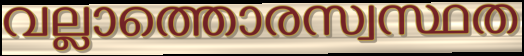
വല്ലാത്തൊരസ്വസ്ഥത